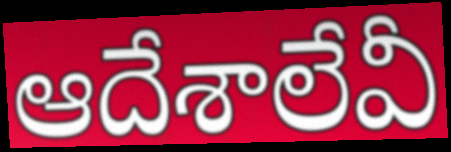
ఆదేశాలేవీ